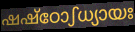
ഷഷ്ഠോഽധ്യായഃ